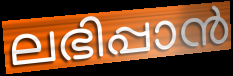
ലഭിപ്പാൻ